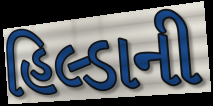
હિલ્ડાની